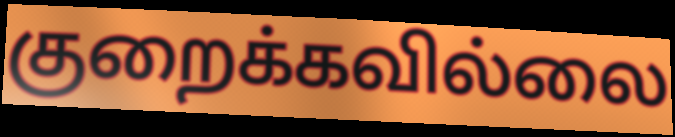
குறைக்கவில்லை